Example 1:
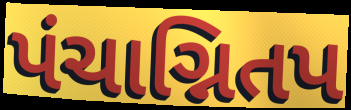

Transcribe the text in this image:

પંચાગ્નિતપ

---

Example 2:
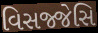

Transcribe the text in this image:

વિસજ્જેસિ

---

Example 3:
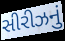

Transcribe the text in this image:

સીરીઝનું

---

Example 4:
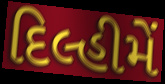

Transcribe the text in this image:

દિલ્હીમેં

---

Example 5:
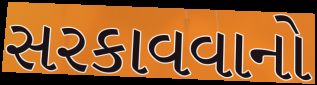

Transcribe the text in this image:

સરકાવવાનો